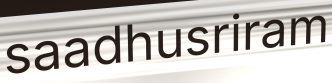
saadhusriram